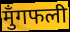
मुँगफली